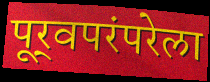
पूर्वपरंपरेला